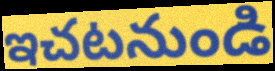
ఇచటనుండి